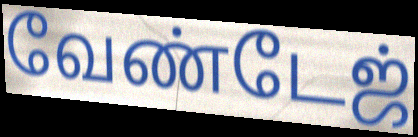
வேண்டேஜ்